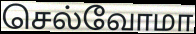
செல்வோமா